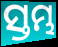
ସ୍ତମ୍ଭ